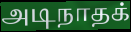
அடிநாதக்